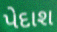
પેદાશ